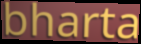
bharta